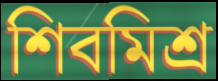
শিবমিশ্র